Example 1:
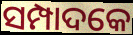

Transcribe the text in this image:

ସମ୍ପାଦକେ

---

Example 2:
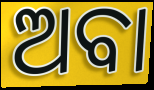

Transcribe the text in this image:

ଅବା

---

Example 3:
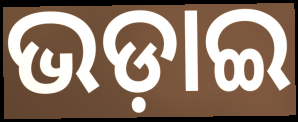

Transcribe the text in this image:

ଭଡ଼ାଇ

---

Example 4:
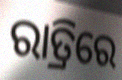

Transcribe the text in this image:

ରାତ୍ରିରେ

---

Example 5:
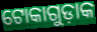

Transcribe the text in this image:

ଟୋକାଗୁଡ଼ାକ